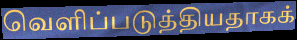
வெளிப்படுத்தியதாகக்